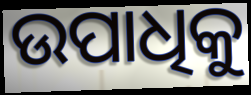
ଉପାଧିକୁ